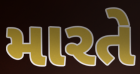
મારતે